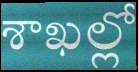
శాఖల్లో